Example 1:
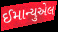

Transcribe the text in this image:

ઈમાન્યુએલ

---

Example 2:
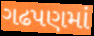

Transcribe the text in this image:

ગઢપણમાં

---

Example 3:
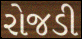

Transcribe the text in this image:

રોજડી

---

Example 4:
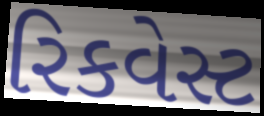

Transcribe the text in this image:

રિકવેસ્ટ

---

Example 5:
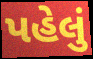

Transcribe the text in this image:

પહેલું